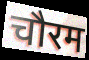
चौरम